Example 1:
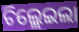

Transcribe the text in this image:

ଚିଲ୍ଲେଇଲା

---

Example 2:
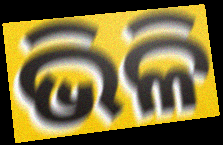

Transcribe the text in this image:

ଭିଳି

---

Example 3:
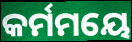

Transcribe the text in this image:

କର୍ମମୟେ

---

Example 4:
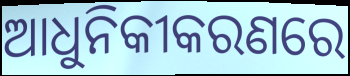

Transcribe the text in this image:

ଆଧୁନିକୀକରଣରେ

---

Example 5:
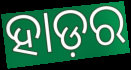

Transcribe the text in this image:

ହାଡ଼ର